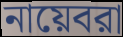
নায়েবরা